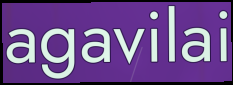
agavilai